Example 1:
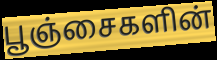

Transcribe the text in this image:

பூஞ்சைகளின்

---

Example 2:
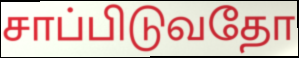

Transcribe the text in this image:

சாப்பிடுவதோ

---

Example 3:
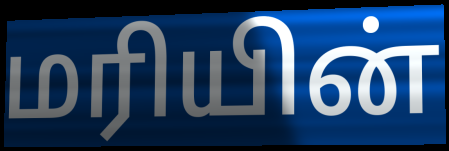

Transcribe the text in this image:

மரியின்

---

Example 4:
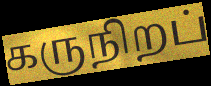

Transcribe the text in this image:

கருநிறப்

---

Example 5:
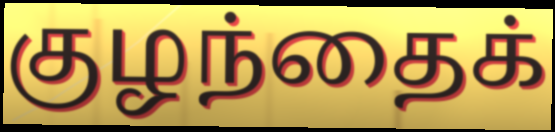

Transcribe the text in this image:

குழந்தைக்